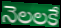
నెలలకే